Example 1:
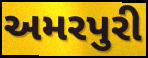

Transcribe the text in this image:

અમરપુરી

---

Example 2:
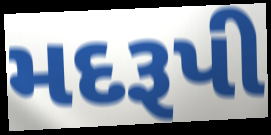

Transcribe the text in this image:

મદરૂપી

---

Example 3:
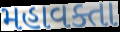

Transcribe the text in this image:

મહાવક્તા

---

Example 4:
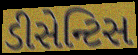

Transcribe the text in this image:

ડીસેન્ટિસ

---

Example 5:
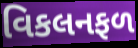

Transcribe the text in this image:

વિકલનફળ